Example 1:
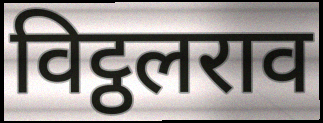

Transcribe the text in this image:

विट्ठलराव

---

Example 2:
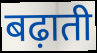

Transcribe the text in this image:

बढ़ाती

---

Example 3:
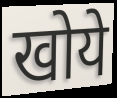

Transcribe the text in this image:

खोये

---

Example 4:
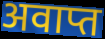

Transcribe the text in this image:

अवाप्त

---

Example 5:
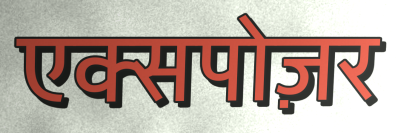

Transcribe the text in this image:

एक्सपोज़र